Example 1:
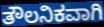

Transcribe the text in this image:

ತೌಲನಿಕವಾಗಿ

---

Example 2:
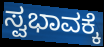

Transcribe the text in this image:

ಸ್ವಭಾವಕ್ಕೆ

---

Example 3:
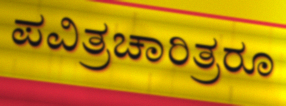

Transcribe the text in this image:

ಪವಿತ್ರಚಾರಿತ್ರರೂ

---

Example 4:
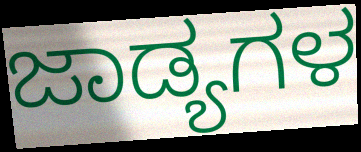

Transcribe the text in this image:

ಜಾಡ್ಯಗಳ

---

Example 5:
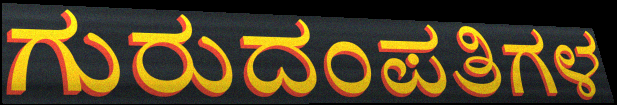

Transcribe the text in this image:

ಗುರುದಂಪತಿಗಳ